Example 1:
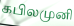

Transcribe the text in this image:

கபிலமுனி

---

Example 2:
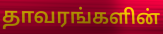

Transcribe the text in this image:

தாவரங்களின்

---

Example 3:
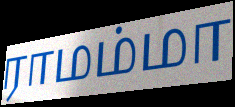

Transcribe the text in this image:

ராமம்மா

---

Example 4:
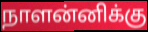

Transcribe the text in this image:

நாளன்னிக்கு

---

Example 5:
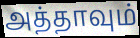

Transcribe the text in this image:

அத்தாவும்